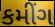
કમીંગ